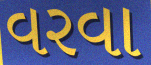
વરવા